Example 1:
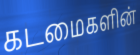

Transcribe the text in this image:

கடமைகளின்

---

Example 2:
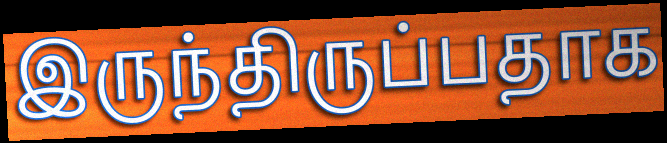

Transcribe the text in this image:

இருந்திருப்பதாக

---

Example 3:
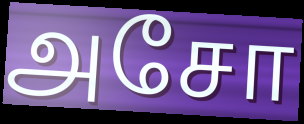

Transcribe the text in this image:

அசோ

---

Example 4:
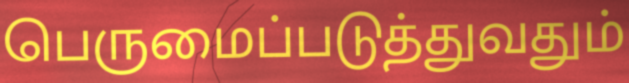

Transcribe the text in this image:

பெருமைப்படுத்துவதும்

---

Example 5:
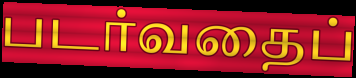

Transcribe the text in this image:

படர்வதைப்